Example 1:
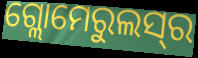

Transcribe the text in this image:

ଗ୍ଲୋମେରୁଲସ୍‌ର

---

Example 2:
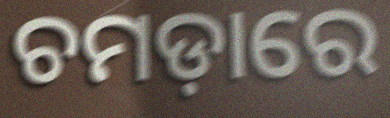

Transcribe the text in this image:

ଚମଡ଼ାରେ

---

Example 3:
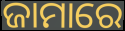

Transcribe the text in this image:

ଜାମାରେ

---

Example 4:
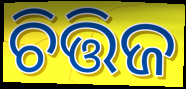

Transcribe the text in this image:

ଚିତ୍ତିଜ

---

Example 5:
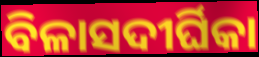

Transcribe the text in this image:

ବିଳାସଦୀର୍ଘିକା